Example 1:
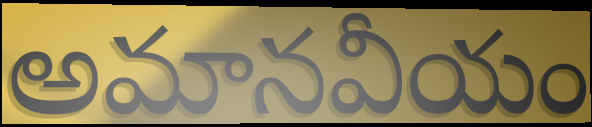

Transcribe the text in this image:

అమానవీయం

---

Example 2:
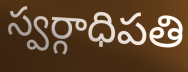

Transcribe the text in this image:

స్వర్గాధిపతి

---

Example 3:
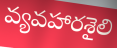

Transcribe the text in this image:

వ్యవహారశైలి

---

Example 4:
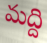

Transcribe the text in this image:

మద్ది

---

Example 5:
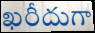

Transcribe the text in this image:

ఖరీదుగా